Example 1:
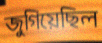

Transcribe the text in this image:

জুগিয়েছিল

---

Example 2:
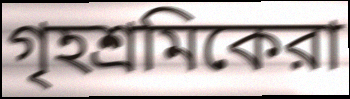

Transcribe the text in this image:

গৃহশ্রমিকেরা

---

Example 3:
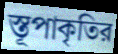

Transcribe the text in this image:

স্তূপাকৃতির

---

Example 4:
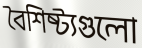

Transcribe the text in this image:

বৈশিষ্ট্যগুলো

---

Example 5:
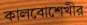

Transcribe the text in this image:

কালবোশেখীর